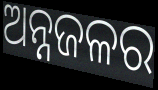
ଅନ୍ନଜଳର